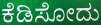
ಕೆಡಿಸೋದು